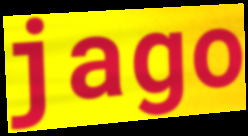
jago